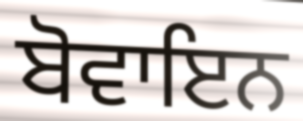
ਬੋਵਾਇਨ